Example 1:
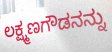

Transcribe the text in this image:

ಲಕ್ಷ್ಮಣಗೌಡನನ್ನು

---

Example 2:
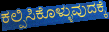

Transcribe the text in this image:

ಕಲ್ಪಿಸಿಕೊಳ್ಳುವುದಕ್ಕೆ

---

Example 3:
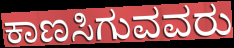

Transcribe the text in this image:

ಕಾಣಸಿಗುವವರು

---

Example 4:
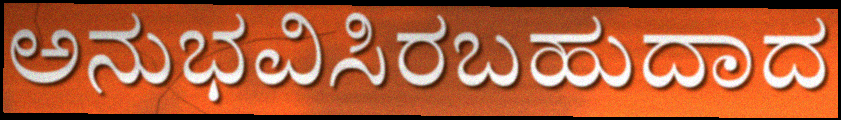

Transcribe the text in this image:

ಅನುಭವಿಸಿರಬಹುದಾದ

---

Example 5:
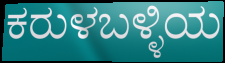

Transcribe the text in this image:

ಕರುಳಬಳ್ಳಿಯ